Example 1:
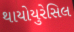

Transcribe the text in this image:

થાયોયુરેસિલ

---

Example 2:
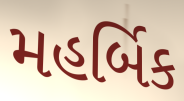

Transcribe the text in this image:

મહર્બિક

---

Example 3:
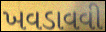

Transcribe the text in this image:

ખવડાવવી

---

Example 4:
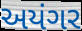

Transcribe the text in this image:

અયંગર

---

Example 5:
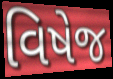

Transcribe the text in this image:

વિષેજ